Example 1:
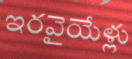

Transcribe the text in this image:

ఇరవైయేళ్లు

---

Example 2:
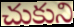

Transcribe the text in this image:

చుకుని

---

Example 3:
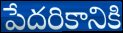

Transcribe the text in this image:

పేదరికానికి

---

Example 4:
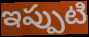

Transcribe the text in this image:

ఇప్పుటి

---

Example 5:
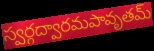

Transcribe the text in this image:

స్వర్గద్వారమపావృతమ్